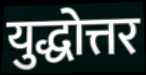
युद्धोत्तर